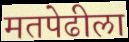
मतपेढीला